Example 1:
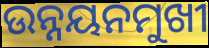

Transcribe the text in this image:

ଉନ୍ନୟନମୁଖୀ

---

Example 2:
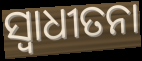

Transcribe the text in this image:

ସ୍ବାଧୀତନା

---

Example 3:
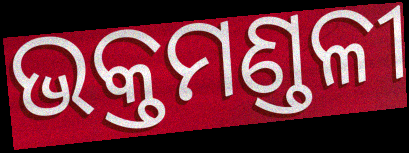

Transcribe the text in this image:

ଭକ୍ତମଣ୍ଡଳୀ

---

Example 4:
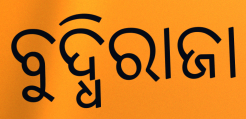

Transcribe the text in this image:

ବୁଦ୍ଧିରାଜା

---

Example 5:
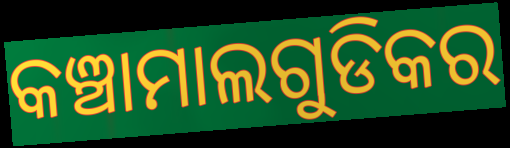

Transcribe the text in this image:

କଞ୍ଚାମାଲଗୁଡିକର